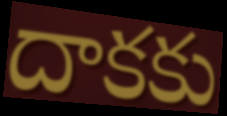
దాకకు